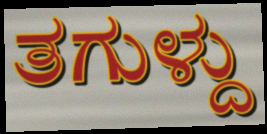
ತಗುಳ್ದು